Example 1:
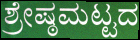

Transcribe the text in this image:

ಶ್ರೇಷ್ಠಮಟ್ಟದ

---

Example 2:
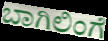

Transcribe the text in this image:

ಬಾಗಿಲಿಂಗೆ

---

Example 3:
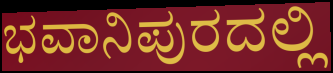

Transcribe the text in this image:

ಭವಾನಿಪುರದಲ್ಲಿ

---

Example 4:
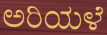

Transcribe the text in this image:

ಅರಿಯಳೆ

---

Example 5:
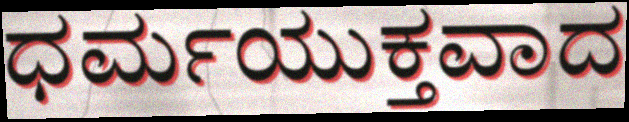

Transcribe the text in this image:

ಧರ್ಮಯುಕ್ತವಾದ